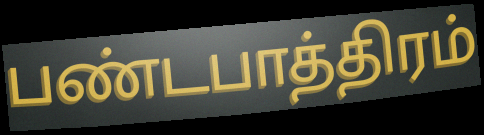
பண்டபாத்திரம்